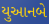
યુઆનબે